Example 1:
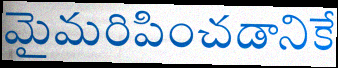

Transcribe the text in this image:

మైమరిపించడానికే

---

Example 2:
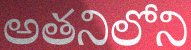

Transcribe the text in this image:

అతనిలోని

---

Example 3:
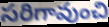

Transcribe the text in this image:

సరిగావుంచి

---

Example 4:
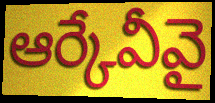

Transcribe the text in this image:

ఆర్కేవీవై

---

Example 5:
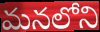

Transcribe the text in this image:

మనలోని